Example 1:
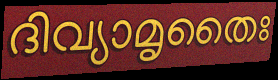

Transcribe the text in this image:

ദിവ്യാമൃതൈഃ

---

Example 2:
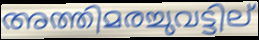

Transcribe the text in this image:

അത്തിമരച്ചുവട്ടില്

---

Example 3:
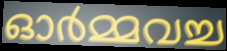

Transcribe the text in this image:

ഓർമ്മവച്ച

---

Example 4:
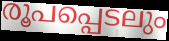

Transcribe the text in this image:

രൂപപ്പെടലും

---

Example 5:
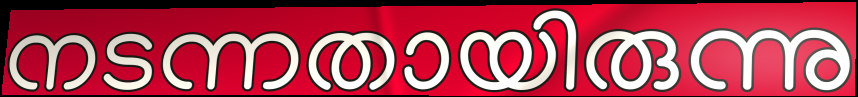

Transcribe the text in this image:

നടന്നതായിരുന്നു